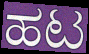
ಹಟ